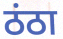
ठंठा